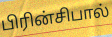
பிரின்சிபால்